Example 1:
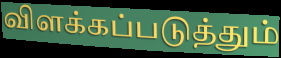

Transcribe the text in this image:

விளக்கப்படுத்தும்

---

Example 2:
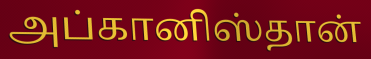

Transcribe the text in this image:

அப்கானிஸ்தான்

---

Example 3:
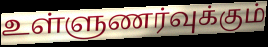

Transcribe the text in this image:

உள்ளுணர்வுக்கும்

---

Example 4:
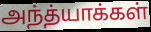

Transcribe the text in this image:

அந்த்யாக்கள்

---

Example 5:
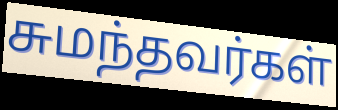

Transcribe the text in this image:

சுமந்தவர்கள்